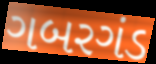
ગબરગંડ